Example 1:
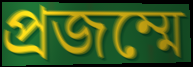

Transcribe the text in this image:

প্রজম্মে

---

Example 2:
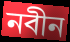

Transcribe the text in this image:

নবীন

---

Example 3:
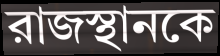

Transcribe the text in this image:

রাজস্থানকে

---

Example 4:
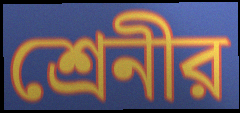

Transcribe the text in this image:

শ্রেনীর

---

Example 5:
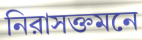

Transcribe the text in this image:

নিরাসক্তমনে